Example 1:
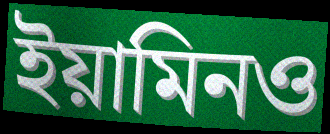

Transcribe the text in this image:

ইয়ামিনও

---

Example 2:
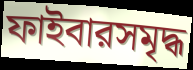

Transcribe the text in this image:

ফাইবারসমৃদ্ধ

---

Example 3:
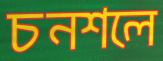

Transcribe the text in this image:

চনশলে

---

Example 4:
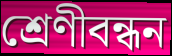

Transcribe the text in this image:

শ্রেণীবন্ধন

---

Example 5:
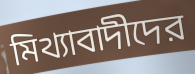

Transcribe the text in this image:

মিথ্যাবাদীদের